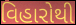
વિહારોથી